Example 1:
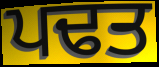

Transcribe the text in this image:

ਪਢਤ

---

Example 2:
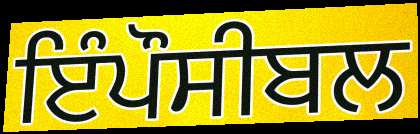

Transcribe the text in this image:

ਇੰਪੌਸੀਬਲ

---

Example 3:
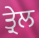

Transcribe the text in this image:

ਤ੍ਰੇਲ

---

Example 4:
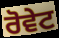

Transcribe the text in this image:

ਰੋਵੇਟ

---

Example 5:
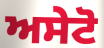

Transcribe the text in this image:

ਅਸੇਟੋ